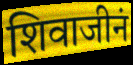
शिवाजीनं